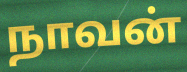
நாவன்